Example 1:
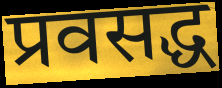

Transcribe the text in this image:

प्रवसद्ध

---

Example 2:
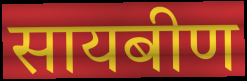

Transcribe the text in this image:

सायबीण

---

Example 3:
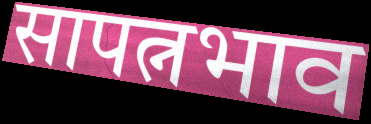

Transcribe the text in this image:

सापत्नभाव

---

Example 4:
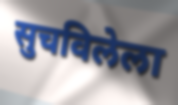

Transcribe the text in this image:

सुचविलेला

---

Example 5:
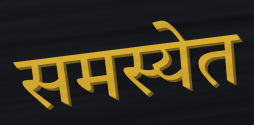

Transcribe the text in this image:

समस्येत